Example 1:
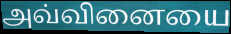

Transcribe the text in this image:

அவ்வினையை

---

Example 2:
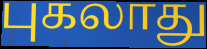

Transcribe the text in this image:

புகலாது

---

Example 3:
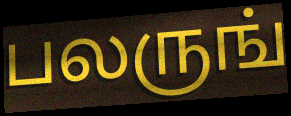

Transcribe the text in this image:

பலருங்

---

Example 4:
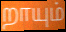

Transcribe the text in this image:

றாயும்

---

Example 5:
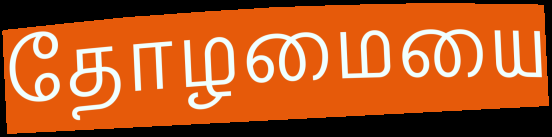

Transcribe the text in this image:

தோழமையை